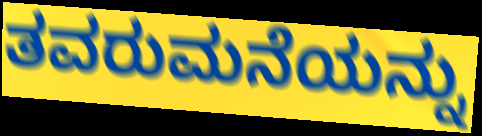
ತವರುಮನೆಯನ್ನು